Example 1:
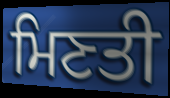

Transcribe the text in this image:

ਮਿਣਤੀ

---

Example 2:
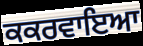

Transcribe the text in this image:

ਕਕਰਵਾਇਆ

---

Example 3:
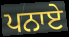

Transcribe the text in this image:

ਪਨਾਏ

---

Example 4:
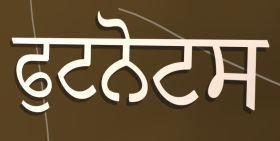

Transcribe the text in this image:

ਫੁਟਨੋਟਸ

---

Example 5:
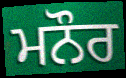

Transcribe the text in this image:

ਮਨੌਰ